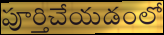
పూర్తిచేయడంలో